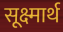
सूक्ष्मार्थ